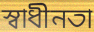
স্বাধীনতা